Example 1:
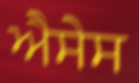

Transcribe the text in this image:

ਐਸੇਸ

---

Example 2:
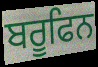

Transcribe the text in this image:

ਬਰੂਫਿਨ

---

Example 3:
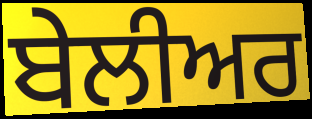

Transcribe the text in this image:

ਬੇਲੀਅਰ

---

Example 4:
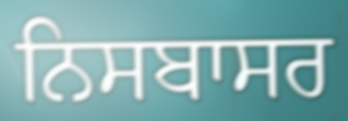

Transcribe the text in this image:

ਨਿਸਬਾਸਰ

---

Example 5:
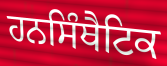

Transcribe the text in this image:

ਹਨਸਿੰਥੈਟਿਕ